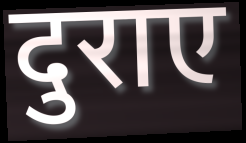
दुराए